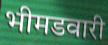
भीमडवारी